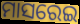
ମାସରେଇ